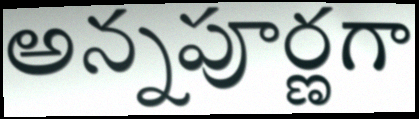
అన్నపూర్ణగా